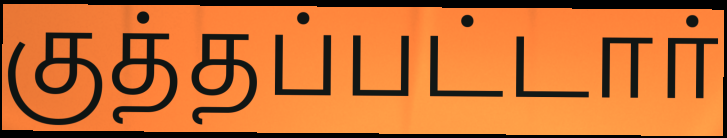
குத்தப்பட்டார்